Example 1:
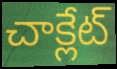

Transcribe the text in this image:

చాక్లేట్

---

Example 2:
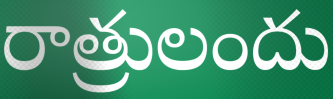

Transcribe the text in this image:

రాత్రులందు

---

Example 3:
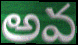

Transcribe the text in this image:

అవ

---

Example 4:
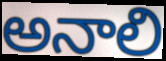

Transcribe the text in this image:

అనాలి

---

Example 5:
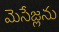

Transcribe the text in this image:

మెసేజ్లను